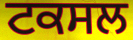
ਟਕਸਲ